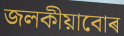
জলকীয়াবোৰ